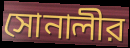
সোনালীর